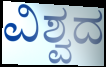
ವಿಶ್ವದ